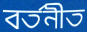
বৰ্তনীত